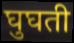
घुघती